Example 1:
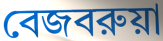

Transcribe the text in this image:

বেজবরুয়া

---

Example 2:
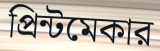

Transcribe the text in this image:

প্রিন্টমেকার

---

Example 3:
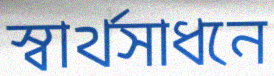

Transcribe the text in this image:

স্বার্থসাধনে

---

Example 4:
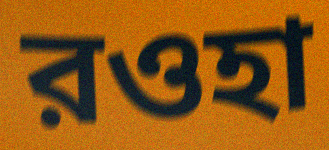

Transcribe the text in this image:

রওহা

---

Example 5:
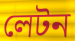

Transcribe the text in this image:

লেটন